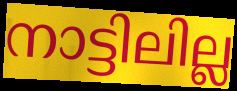
നാട്ടിലില്ല